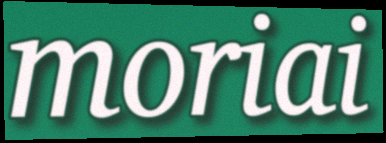
moriai